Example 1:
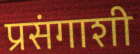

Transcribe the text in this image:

प्रसंगाशी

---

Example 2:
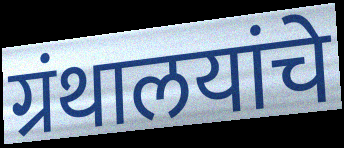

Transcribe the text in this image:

ग्रंथालयांचे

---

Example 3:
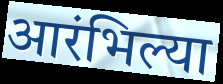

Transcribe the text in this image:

आरंभिल्या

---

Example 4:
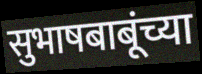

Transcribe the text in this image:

सुभाषबाबूंच्या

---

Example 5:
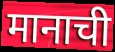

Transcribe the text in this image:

मानाची